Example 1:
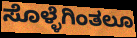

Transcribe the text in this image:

ಸೊಳ್ಳೆಗಿಂತಲೂ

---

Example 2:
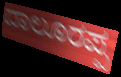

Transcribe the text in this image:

ದಾಲೂರಪ್ಪ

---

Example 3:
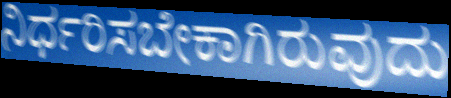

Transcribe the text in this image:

ನಿರ್ಧರಿಸಬೇಕಾಗಿರುವುದು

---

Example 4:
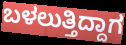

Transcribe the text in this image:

ಬಳಲುತ್ತಿದ್ದಾಗ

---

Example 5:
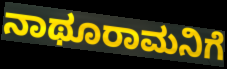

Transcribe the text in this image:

ನಾಥೂರಾಮನಿಗೆ